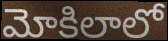
మోకిలాలో